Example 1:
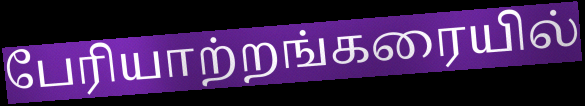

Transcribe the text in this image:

பேரியாற்றங்கரையில்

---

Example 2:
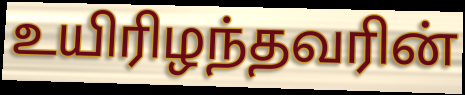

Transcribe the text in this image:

உயிரிழந்தவரின்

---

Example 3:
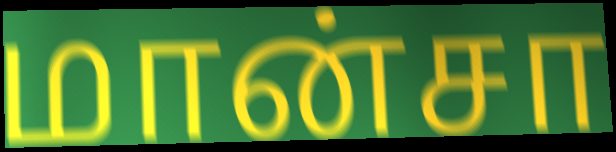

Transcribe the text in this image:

மான்சா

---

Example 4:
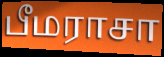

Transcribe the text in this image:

பீமராசா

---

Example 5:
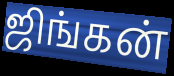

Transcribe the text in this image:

ஜிங்கன்